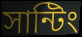
সান্টিং